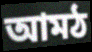
আমঠ